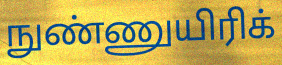
நுண்ணுயிரிக்